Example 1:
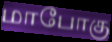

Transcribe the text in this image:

மாபோகு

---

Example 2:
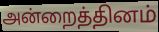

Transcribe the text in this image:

அன்றைத்தினம்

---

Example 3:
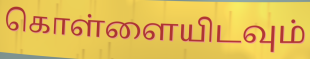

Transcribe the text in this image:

கொள்ளையிடவும்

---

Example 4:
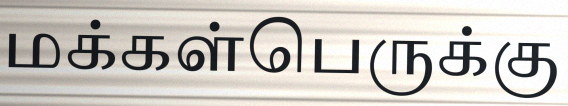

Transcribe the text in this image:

மக்கள்பெருக்கு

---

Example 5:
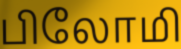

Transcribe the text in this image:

பிலோமி